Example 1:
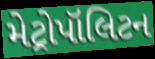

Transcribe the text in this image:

મેટ્રોપૉલિટન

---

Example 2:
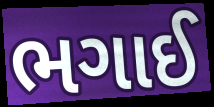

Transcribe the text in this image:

ભગાઈ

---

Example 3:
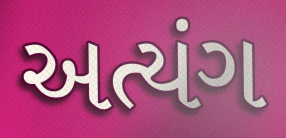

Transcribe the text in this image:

અત્યંગ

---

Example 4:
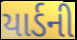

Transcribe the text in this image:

યાર્ડની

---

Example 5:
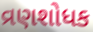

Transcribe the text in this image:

વ્રણશોધક